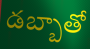
డబ్బాతో